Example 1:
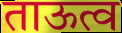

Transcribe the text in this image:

ताऊत्व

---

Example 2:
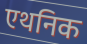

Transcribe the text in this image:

एथनिक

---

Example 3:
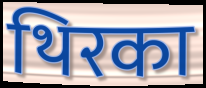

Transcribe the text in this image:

थिरका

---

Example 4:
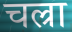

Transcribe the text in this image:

चल्रा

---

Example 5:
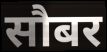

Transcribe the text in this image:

सौबर